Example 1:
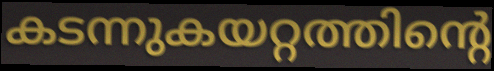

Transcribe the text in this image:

കടന്നുകയറ്റത്തിന്റെ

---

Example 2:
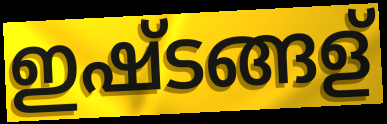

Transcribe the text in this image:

ഇഷ്ടങ്ങള്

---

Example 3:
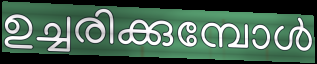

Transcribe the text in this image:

ഉച്ചരിക്കുമ്പോൾ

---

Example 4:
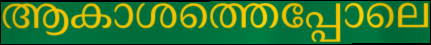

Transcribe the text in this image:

ആകാശത്തെപ്പോലെ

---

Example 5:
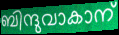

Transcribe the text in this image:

ബിന്ദുവാകാന്